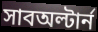
সাবঅল্টার্ন